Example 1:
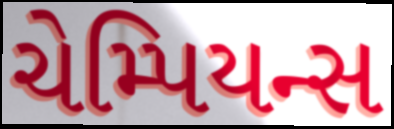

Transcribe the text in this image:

ચેમ્પિયન્સ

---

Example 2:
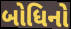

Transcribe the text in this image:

બોધિનો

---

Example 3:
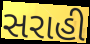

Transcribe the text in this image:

સરાહી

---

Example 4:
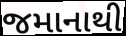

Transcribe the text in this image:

જમાનાથી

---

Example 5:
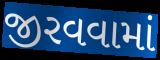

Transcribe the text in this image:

જીરવવામાં